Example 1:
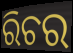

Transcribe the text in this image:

ରିଚର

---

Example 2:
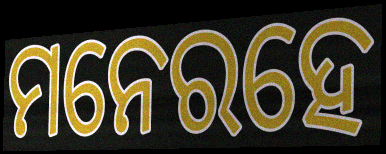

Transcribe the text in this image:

ମନେରହେ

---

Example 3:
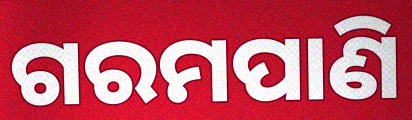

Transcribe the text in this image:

ଗରମପାଣି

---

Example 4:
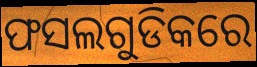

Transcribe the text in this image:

ଫସଲଗୁଡିକରେ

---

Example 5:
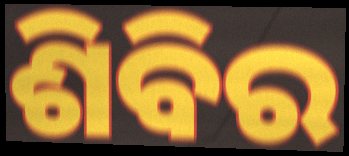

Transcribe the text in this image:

ଶିବିର